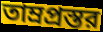
তাম্রপ্রস্তর